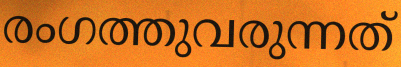
രംഗത്തുവരുന്നത്